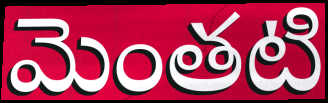
మెంతటి